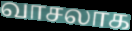
வாசலாக